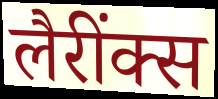
लैरींक्स